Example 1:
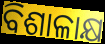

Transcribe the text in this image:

ବିଶାଳାକ୍ଷ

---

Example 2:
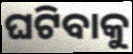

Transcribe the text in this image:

ଘଟିବାକୁ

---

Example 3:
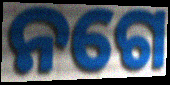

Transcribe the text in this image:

ନଗେ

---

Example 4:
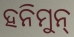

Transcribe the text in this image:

ହନିମୁନ୍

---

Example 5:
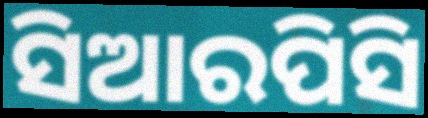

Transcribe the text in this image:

ସିଆରପିସି